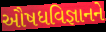
ઔષધવિજ્ઞાનને